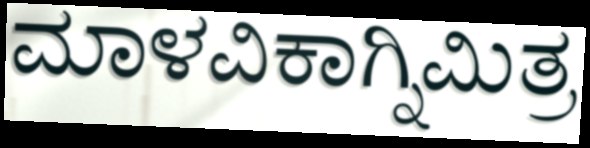
ಮಾಳವಿಕಾಗ್ನಿಮಿತ್ರ